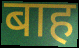
बाह